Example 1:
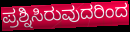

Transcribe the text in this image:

ಪ್ರಶ್ನಿಸಿರುವುದರಿಂದ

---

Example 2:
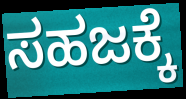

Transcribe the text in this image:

ಸಹಜಕ್ಕೆ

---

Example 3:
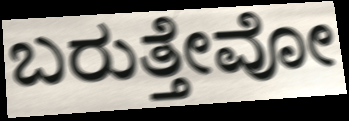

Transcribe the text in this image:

ಬರುತ್ತೇವೋ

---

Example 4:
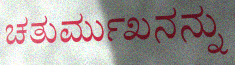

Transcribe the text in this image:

ಚತುರ್ಮುಖನನ್ನು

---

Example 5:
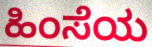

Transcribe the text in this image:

ಹಿಂಸೆಯ